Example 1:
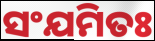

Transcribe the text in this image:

ସଂଯମିତଃ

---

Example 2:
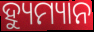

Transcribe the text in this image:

ହ୍ୟୁମ୍ୟାନ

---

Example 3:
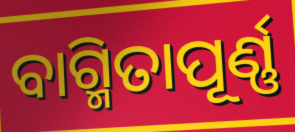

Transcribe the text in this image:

ବାଗ୍ମିତାପୂର୍ଣ୍ଣ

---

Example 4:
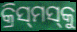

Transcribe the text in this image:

କ୍ରିସ୍‌ମସ୍‌କୁ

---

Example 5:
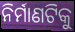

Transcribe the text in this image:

ନିର୍ମାଣଟିକୁ